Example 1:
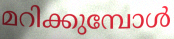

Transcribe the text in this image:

മറിക്കുമ്പോൾ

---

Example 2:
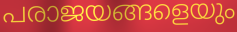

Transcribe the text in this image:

പരാജയങ്ങളെയും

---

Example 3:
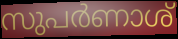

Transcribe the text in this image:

സുപർണാശ്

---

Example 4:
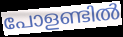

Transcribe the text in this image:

പോളണ്ടിൽ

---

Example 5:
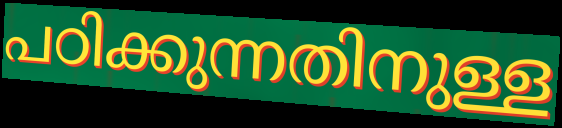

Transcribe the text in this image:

പഠിക്കുന്നതിനുള്ള